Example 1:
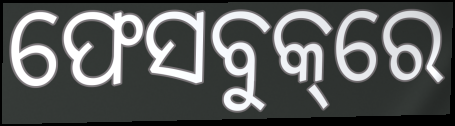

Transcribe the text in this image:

ଫେସବୁକ୍‌ରେ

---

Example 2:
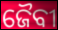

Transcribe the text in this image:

ଜୈବୀ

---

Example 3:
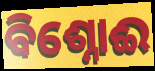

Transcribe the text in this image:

ବିଶ୍ନୋଈ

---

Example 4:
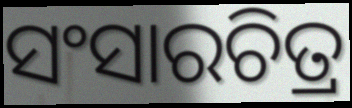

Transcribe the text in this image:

ସଂସାରଚିତ୍ର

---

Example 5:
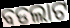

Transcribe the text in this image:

ବଡଲାଟ